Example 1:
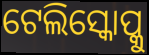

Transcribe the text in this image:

ଟେଲିସ୍କୋପ୍କୁ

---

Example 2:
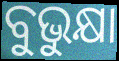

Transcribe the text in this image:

ବୁଭୁକ୍ଷା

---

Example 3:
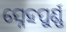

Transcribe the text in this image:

ସ୍ନେହପୁର୍ଣ୍ଣ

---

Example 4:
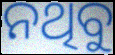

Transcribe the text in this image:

ନଥିବୁ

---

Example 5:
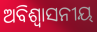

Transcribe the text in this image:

ଅବିଶ୍ୱାସନୀୟ